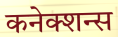
कनेक्शन्स